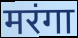
मरंगा